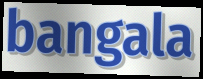
bangala